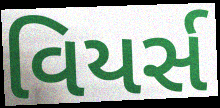
વિયર્સ